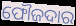
ଫୌଜଦାର